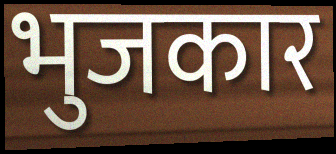
भुजकार